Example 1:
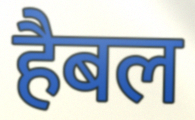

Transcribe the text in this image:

हैबल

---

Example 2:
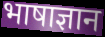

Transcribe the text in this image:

भाषाज्ञान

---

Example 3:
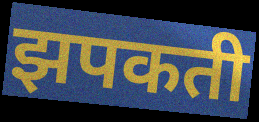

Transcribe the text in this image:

झपकती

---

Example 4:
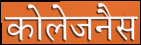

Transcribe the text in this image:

कोलेजनैस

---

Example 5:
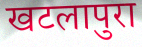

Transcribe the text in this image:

खटलापुरा